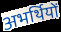
अभर्थियों